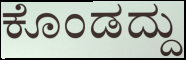
ಕೊಂಡದ್ದು